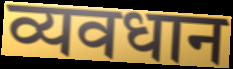
व्यवधान